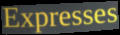
Expresses